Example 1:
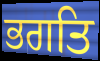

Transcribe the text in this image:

ਭਗਤਿ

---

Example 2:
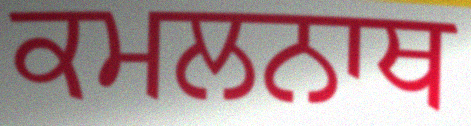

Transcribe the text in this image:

ਕਮਲਨਾਥ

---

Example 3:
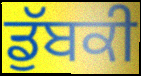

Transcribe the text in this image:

ਡੁੱਬਕੀ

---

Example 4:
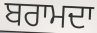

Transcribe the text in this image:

ਬਰਾਮਦਾ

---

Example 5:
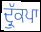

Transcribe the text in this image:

ਦ੍ਰੁੱਕਪਾ